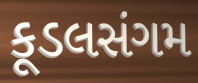
કૂડલસંગમ